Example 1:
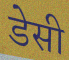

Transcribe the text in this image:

डेसी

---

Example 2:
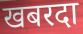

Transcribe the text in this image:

खबरदा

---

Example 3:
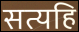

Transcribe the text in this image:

सत्यहि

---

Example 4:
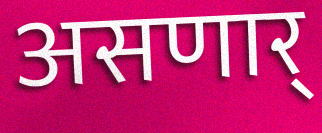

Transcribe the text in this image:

असणार्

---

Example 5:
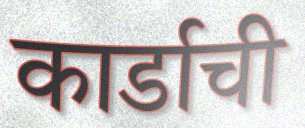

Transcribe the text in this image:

कार्डाची